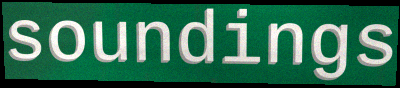
soundings